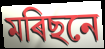
মৰিছনে